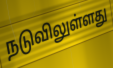
நடுவிலுள்ளது